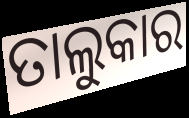
ତାଲୁକାର